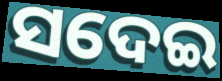
ସଦେଇ